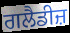
ਗਲੈਡੀਜ਼